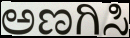
ಅಣಗಿಸಿ